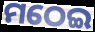
ମଠେଇ